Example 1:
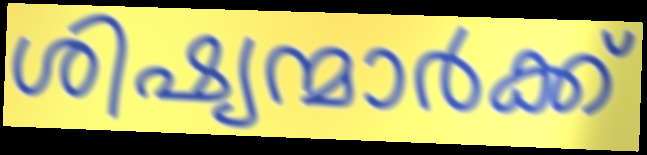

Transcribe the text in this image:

ശിഷ്യന്മാർക്ക്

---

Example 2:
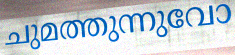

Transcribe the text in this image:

ചുമത്തുന്നുവോ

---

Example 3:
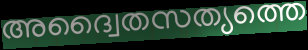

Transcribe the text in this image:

അദ്വൈതസത്യത്തെ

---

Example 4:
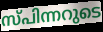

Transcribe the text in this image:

സ്പിന്നറുടെ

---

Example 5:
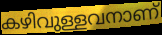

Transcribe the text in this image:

കഴിവുള്ളവനാണ്